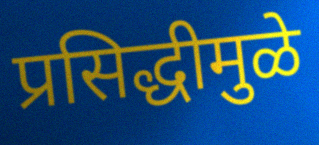
प्रसिद्धीमुळे